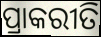
ପ୍ରାକରୀତି